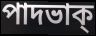
পাদভাক্